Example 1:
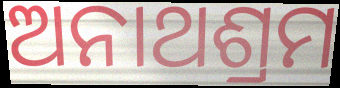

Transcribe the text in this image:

ଅନାଥଶ୍ରମ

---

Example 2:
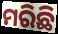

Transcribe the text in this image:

ମରିଛି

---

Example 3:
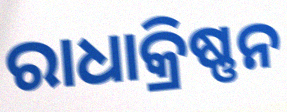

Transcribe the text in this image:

ରାଧାକ୍ରିଷ୍ଣନ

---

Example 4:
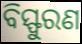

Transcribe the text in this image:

ବିସ୍ଫୁରଣ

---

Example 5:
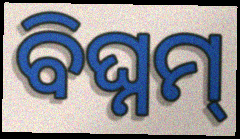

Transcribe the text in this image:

ବିଘ୍ନମ୍